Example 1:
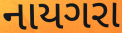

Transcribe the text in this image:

નાયગરા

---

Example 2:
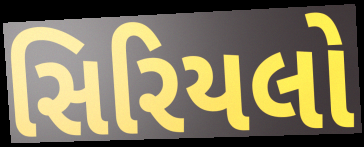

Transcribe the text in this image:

સિરિયલો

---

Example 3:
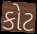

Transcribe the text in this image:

કોટ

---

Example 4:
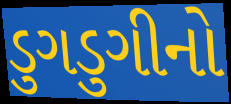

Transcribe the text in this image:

ડુગડુગીનો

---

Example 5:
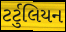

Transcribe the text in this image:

ટર્ટુલિયન